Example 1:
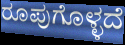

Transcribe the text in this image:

ರೂಪುಗೊಳ್ಳದೆ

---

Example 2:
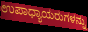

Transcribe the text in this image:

ಉಪಾಧ್ಯಾಯರುಗಳನ್ನು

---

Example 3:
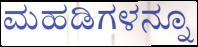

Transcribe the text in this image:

ಮಹಡಿಗಳನ್ನೂ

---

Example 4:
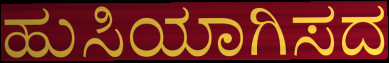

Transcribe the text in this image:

ಹುಸಿಯಾಗಿಸದ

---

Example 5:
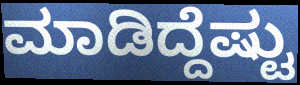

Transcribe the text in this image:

ಮಾಡಿದ್ದೆಷ್ಟು